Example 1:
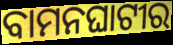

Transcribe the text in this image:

ବାମନଘାଟୀର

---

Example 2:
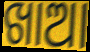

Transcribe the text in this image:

ଖାଆ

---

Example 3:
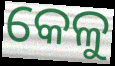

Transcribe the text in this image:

କେଳୁ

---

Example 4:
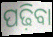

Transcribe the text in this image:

ପଢ଼ିବା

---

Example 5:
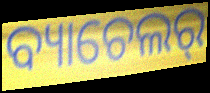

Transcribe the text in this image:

ବ୍ୟାଚେଲର୍